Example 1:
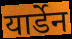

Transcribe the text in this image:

यार्डेन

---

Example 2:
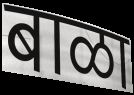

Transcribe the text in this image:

बाळा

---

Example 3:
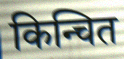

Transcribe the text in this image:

किन्चित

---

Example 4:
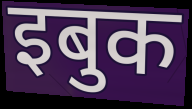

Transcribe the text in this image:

इबुक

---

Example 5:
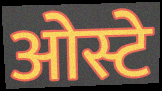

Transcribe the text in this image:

ओस्टे